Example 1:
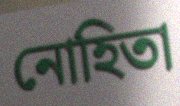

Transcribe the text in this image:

নোহিতা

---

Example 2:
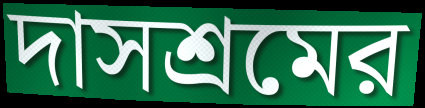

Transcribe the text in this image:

দাসশ্রমের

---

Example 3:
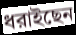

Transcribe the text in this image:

ধরাইছেন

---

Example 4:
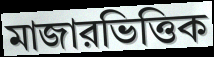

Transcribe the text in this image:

মাজারভিত্তিক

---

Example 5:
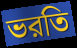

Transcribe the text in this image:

ভরতি